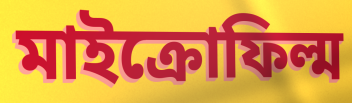
মাইক্রোফিল্ম